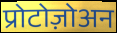
प्रोटोज़ोअन